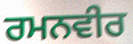
ਰਮਨਵੀਰ